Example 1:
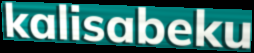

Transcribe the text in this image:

kalisabeku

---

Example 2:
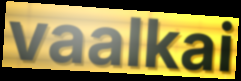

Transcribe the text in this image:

vaalkai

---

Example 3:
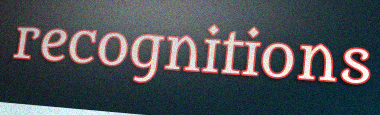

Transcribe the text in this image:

recognitions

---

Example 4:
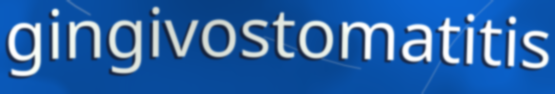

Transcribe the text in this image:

gingivostomatitis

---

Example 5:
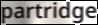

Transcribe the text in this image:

partridge